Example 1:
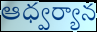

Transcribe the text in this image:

ఆధ్వర్యాన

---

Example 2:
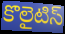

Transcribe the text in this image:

కొలైటిస్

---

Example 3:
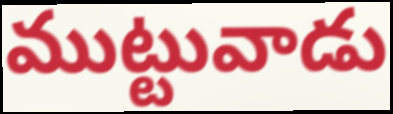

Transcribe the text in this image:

ముట్టువాడు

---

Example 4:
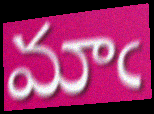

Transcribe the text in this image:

మాఁ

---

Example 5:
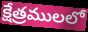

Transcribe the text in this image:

క్షేత్రములలో